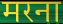
मरना